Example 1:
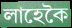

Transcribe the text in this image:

লাহেকৈ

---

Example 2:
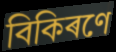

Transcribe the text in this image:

বিকিৰণে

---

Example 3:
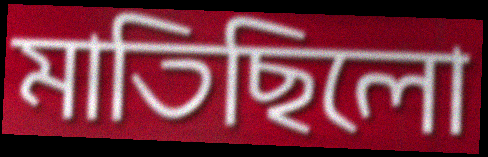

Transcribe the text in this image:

মাতিছিলো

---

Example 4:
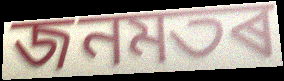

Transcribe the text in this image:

জনমতৰ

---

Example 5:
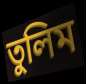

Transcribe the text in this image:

তুলিম